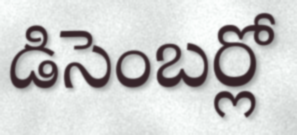
డిసెంబర్లో